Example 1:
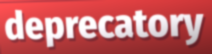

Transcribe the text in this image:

deprecatory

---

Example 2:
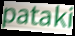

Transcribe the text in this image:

pataki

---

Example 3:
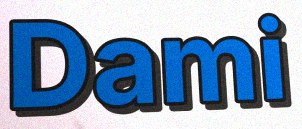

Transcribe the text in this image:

Dami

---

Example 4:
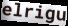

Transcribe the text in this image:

elrigu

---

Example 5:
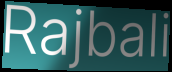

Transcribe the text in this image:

Rajbali